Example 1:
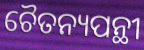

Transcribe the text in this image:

ଚୈତନ୍ୟପନ୍ଥୀ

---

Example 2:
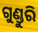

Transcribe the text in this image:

ଗୁଣ୍ଡୁରି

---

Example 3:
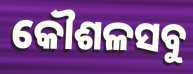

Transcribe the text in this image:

କୌଶଳସବୁ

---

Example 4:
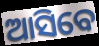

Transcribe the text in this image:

ଆସିବେ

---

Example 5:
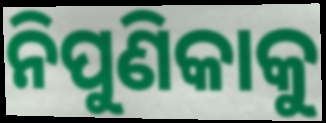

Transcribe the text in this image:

ନିପୁଣିକାକୁ